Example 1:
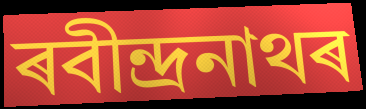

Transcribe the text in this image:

ৰবীন্দ্ৰনাথৰ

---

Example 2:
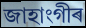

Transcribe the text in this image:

জাহাংগীৰ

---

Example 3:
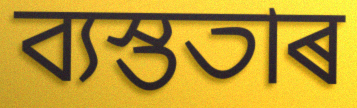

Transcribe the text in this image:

ব্যস্ততাৰ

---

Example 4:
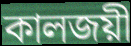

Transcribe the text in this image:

কালজয়ী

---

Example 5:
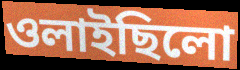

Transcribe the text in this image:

ওলাইছিলো